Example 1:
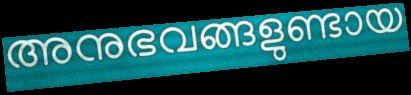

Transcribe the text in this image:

അനുഭവങ്ങളുണ്ടായ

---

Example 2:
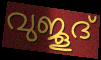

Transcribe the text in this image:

വുജൂദ്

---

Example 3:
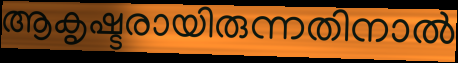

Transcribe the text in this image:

ആകൃഷ്ടരായിരുന്നതിനാൽ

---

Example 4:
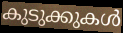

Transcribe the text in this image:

കുടുക്കുകൾ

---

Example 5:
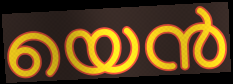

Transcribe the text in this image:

യെൻ